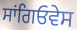
ਸਾਂਗਿਓਵੇਸ